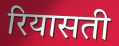
रियासती